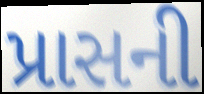
પ્રાસની